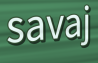
savaj